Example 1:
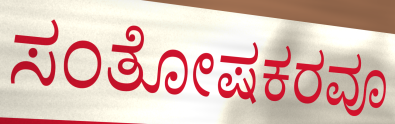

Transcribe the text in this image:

ಸಂತೋಷಕರವೂ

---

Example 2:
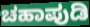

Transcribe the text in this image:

ಚಹಾಪುಡಿ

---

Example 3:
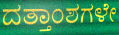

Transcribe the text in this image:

ದತ್ತಾಂಶಗಳೇ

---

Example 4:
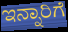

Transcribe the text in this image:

ಇನ್ನಾರಿಗೆ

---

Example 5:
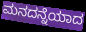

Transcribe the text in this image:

ಮನದನ್ನೆಯಾದ